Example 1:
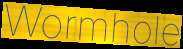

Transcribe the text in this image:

Wormhole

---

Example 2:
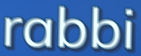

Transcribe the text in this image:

rabbi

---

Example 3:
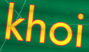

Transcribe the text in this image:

khoi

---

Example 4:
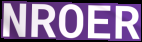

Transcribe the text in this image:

NROER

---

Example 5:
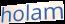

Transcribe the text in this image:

holam